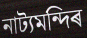
নাট্যমন্দিৰ